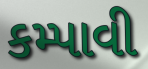
કમ્પાવી